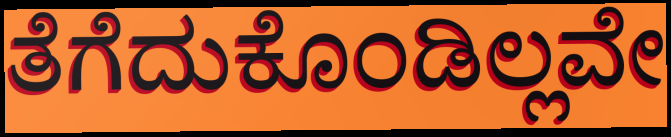
ತೆಗೆದುಕೊಂಡಿಲ್ಲವೇ